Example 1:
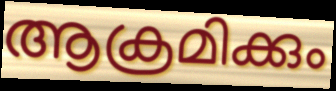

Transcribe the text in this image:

ആക്രമിക്കും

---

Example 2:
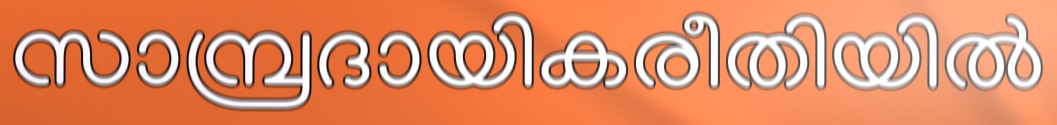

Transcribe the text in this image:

സാമ്പ്രദായികരീതിയിൽ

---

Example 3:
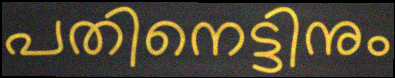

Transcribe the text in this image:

പതിനെട്ടിനും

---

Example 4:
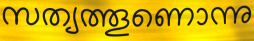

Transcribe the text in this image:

സത്യത്തൂണൊന്നു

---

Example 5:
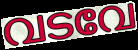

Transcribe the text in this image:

വടവേ